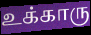
உக்காரு